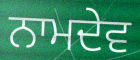
ਨਾਮਦੇਵ